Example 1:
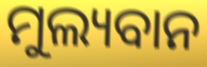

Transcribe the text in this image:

ମୁଲ୍ୟବାନ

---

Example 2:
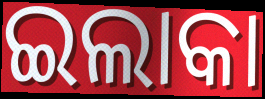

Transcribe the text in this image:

ଇଲାକା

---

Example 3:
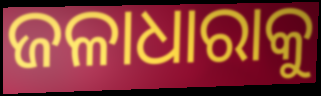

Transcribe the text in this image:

ଜଳାଧାରାକୁ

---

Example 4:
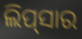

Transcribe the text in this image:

ଲିପ୍‌ସାର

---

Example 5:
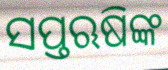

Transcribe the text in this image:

ସପ୍ତଋଷିଙ୍କ